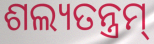
ଶଲ୍ୟତନ୍ତ୍ରମ୍